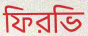
ফিরভি